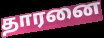
தாரனை